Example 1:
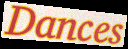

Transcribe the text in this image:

Dances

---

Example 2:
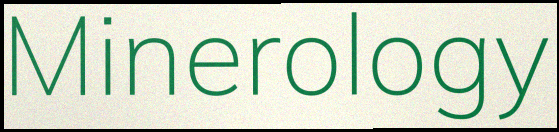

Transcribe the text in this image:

Minerology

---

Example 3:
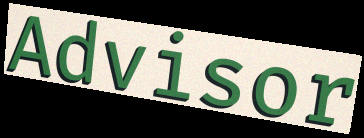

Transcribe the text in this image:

Advisor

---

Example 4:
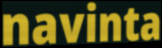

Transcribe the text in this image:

navinta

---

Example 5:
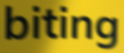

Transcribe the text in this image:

biting